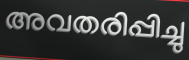
അവതരിപ്പിച്ചു